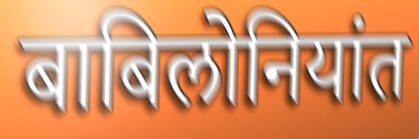
बाबिलोनियांत